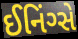
ઈનિંગ્સે